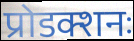
प्रोडक्शनः